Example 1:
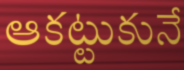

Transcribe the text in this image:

ఆకట్టుకునే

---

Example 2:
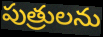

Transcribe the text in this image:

పుత్రులను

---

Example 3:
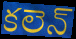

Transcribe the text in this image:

కలెన్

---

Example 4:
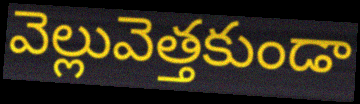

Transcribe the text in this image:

వెల్లువెత్తకుండా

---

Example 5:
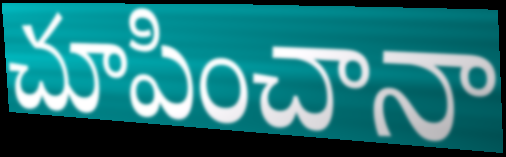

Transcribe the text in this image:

చూపించానా